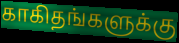
காகிதங்களுக்கு